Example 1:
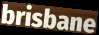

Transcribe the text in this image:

brisbane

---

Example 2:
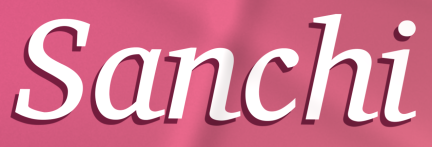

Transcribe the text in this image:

Sanchi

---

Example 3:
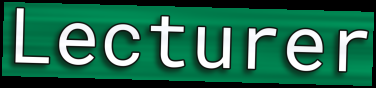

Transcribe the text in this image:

Lecturer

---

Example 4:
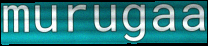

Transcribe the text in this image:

murugaa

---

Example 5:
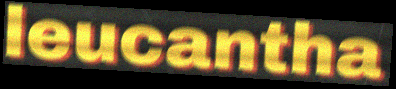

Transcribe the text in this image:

leucantha